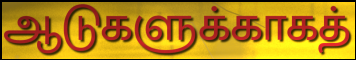
ஆடுகளுக்காகத்